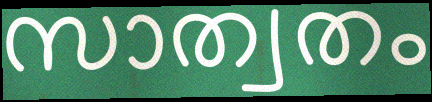
സാത്വതം